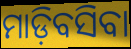
ମାଡ଼ିବସିବା